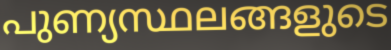
പുണ്യസ്ഥലങ്ങളുടെ